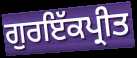
ਗੁਰਇੱਕਪ੍ਰੀਤ